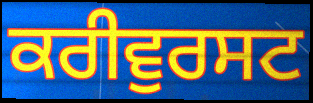
ਕਰੀਵੁਰਸਟ